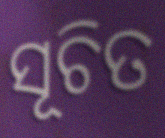
ସୂଚିତ